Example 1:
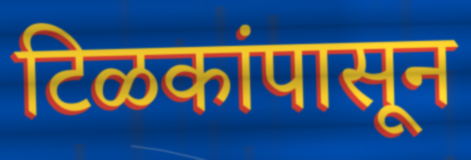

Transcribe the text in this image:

टिळकांपासून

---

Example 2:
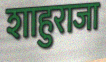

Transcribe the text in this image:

शाहुराजा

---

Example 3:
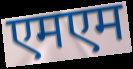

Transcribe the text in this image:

एमएम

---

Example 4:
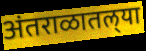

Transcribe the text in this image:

अंतराळातल्या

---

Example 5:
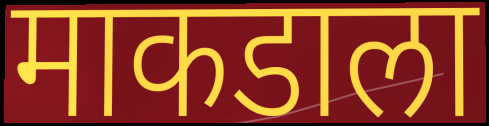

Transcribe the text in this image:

माकडाला